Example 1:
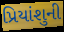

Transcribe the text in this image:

પ્રિયાંશુની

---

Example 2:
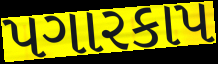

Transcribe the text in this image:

પગારકાપ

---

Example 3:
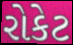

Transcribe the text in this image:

રોકેટ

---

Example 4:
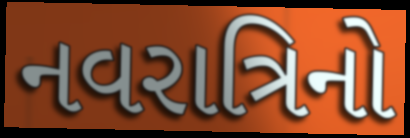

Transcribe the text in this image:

નવરાત્રિનો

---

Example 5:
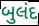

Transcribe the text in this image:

બુલંદ